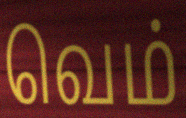
வெம்